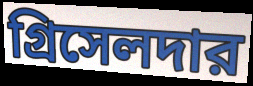
গ্রিসেলদার